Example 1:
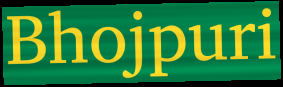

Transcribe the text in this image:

Bhojpuri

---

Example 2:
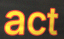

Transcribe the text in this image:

act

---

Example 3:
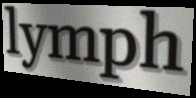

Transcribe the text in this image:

lymph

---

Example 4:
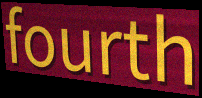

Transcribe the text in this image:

fourth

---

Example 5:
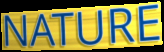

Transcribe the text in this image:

NATURE